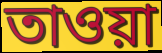
তাওয়া